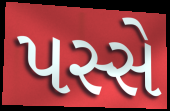
પસ્સે